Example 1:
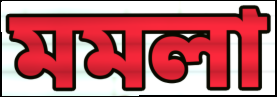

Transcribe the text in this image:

মমলা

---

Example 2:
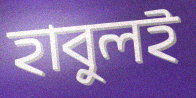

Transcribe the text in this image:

হাবুলই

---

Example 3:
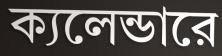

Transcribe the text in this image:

ক্যলেন্ডারে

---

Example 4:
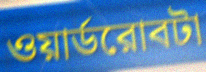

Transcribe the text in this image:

ওয়ার্ডরোবটা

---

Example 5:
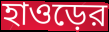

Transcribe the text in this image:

হাওড়ের